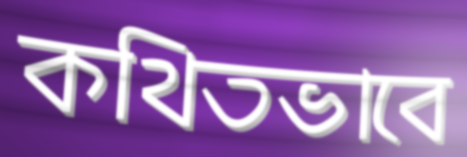
কথিতভাবে